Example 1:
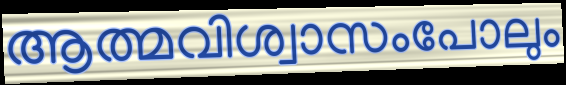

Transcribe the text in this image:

ആത്മവിശ്വാസംപോലും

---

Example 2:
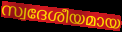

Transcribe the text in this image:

സ്വദേശീയമായ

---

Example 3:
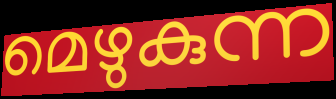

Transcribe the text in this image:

മെഴുകുന്ന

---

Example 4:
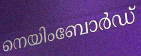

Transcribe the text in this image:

നെയിംബോർഡ്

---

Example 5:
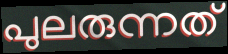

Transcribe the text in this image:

പുലരുന്നത്